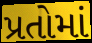
પ્રતોમાં